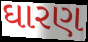
ઘારણ